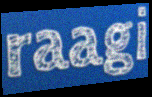
raagi